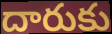
దారుకు